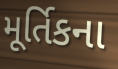
મૂર્તિકના